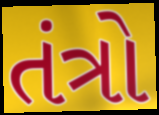
તંત્રો